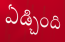
ఏడ్చింది